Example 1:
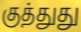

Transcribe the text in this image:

குத்துது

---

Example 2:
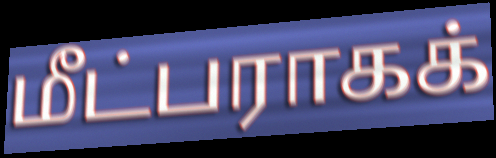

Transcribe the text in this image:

மீட்பராகக்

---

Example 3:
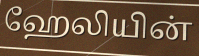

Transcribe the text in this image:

ஹேலியின்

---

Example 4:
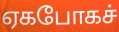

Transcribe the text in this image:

ஏகபோகச்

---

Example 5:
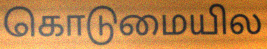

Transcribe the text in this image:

கொடுமையில